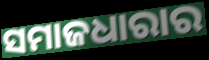
ସମାଜଧାରାର